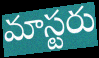
మాస్టరు